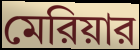
মেরিয়ার